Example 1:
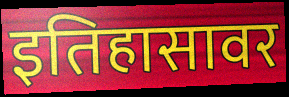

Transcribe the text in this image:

इतिहासावर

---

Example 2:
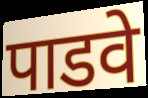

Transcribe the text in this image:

पाडवे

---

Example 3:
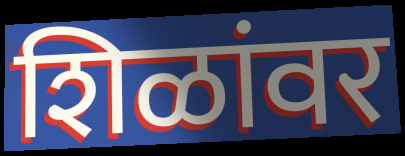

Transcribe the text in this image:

शिळांवर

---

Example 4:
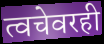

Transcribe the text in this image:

त्वचेवरही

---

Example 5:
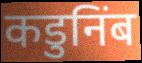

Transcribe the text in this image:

कडुनिंब